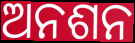
ଅନଶନ